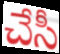
చేసీ